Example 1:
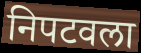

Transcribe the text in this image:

निपटवला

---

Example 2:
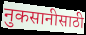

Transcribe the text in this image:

नुकसानीसाठी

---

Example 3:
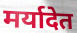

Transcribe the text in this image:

मर्यादेत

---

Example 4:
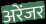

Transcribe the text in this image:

अरेंजर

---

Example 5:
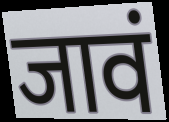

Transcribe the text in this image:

जावं